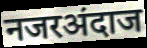
नजरअंदाज